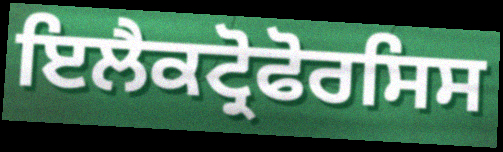
ਇਲੈਕਟ੍ਰੋਫੋਰਸਿਸ